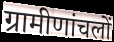
ग्रामीणांचलों